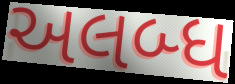
અલબ્ધ